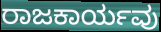
ರಾಜಕಾರ್ಯವು